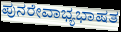
ಪುನರೇವಾಭ್ಯಭಾಷತ